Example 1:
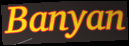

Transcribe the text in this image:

Banyan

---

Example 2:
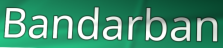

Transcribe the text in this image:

Bandarban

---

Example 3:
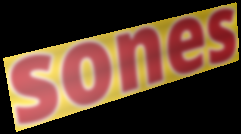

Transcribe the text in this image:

sones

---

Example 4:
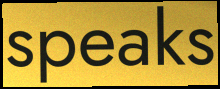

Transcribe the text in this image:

speaks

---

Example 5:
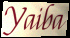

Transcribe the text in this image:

Yaiba